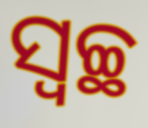
ସ୍ଵଚ୍ଛ